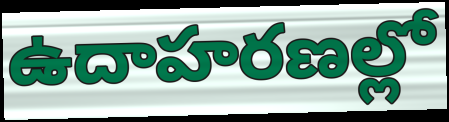
ఉదాహరణల్లో